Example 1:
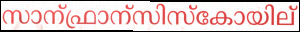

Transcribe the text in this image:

സാന്ഫ്രാന്സിസ്കോയില്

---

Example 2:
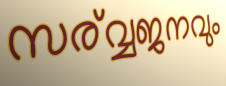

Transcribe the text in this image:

സര്വ്വജനവും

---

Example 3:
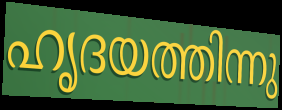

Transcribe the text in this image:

ഹൃദയത്തിന്നു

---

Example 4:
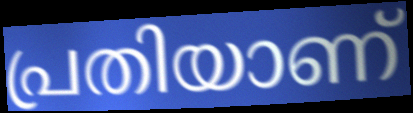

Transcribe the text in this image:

പ്രതിയാണ്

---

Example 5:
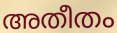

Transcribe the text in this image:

അതീതം